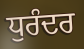
ਧੁਰੰਦਰ